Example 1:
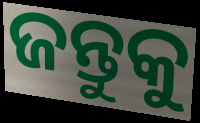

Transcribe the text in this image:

ଜନ୍ତୁକୁ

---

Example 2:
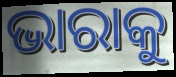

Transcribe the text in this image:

ଭାରାକୁ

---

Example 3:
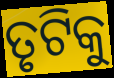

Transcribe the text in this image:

ତୃଟିକୁ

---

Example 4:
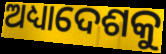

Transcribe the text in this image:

ଅଧ୍ୟାଦେଶକୁ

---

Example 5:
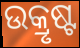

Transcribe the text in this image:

ଉକ୍ରୃଷ୍ଟ